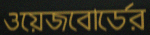
ওয়েজবোর্ডের